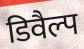
डिवैल्प